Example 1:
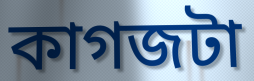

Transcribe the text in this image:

কাগজটা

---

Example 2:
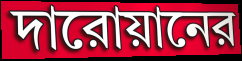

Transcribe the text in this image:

দারোয়ানের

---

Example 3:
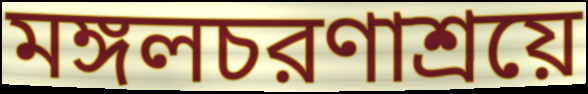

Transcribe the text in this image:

মঙ্গলচরণাশ্রয়ে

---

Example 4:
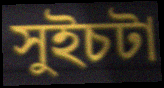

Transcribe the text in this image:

সুইচটা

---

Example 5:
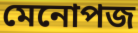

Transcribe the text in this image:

মেনোপজ